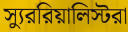
স্যুররিয়ালিস্টরা